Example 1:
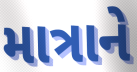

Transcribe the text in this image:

માત્રાને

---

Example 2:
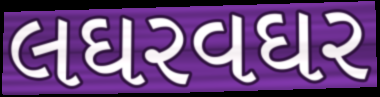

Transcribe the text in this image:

લઘરવઘર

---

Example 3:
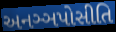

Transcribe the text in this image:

અનઞ્ઞપોસીતિ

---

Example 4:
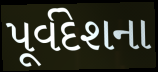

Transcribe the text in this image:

પૂર્વદેશના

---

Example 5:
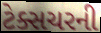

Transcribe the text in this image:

ટેક્સચરની